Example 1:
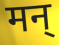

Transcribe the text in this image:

मन्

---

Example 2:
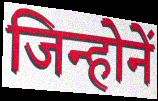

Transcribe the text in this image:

जिन्होनें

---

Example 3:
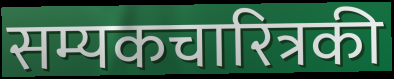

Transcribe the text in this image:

सम्यकचारित्रकी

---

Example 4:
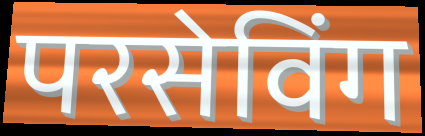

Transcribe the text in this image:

परसेविंग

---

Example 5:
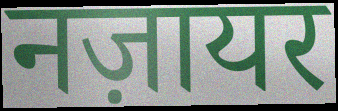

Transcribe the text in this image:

नज़ायर